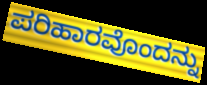
ಪರಿಹಾರವೊಂದನ್ನು